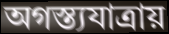
অগস্ত্যযাত্রায়